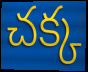
చక్క